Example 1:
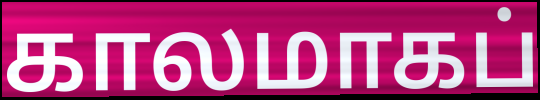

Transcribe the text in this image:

காலமாகப்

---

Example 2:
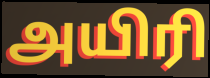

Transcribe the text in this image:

அயிரி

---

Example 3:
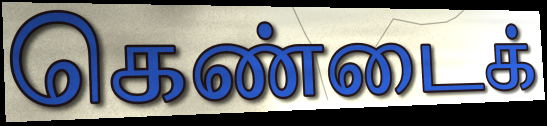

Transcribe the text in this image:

கெண்டைக்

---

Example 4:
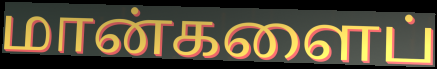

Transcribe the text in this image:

மான்களைப்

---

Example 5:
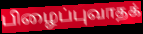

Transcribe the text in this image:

பிழைப்புவாதக்